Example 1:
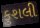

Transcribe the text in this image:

કુશલી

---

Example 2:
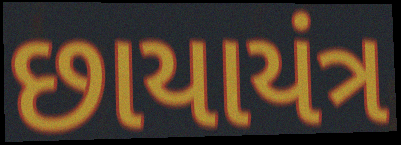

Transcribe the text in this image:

છાયાયંત્ર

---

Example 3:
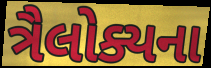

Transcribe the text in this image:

ત્રૈલોક્યના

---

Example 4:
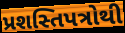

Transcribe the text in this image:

પ્રશસ્તિપત્રોથી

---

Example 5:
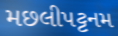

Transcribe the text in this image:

મછલીપટ્ટનમ